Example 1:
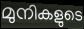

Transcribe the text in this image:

മുനികളുടെ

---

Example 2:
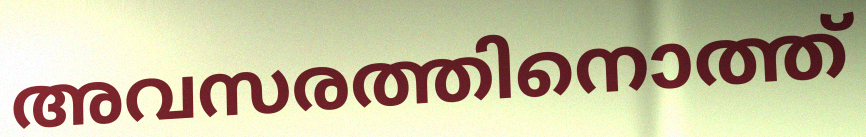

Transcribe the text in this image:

അവസരത്തിനൊത്ത്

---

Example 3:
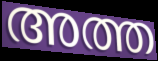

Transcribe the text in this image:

അത്ത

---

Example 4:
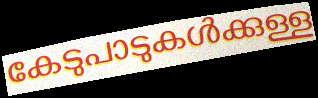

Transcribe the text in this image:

കേടുപാടുകൾക്കുള്ള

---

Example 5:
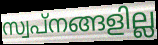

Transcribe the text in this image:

സ്വപ്നങ്ങളില്ല